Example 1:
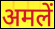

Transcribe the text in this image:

अमलें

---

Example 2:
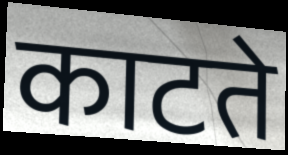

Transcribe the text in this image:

काटते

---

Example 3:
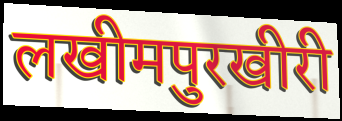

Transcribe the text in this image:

लखीमपुरखीरी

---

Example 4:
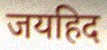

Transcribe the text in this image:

जयहिद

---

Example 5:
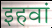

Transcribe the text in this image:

इहवां